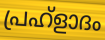
പ്രഹ്ളാദം